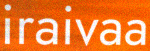
iraivaa